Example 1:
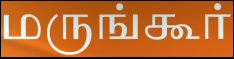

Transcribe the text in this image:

மருங்கூர்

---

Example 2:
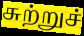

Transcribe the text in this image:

சுற்றுச்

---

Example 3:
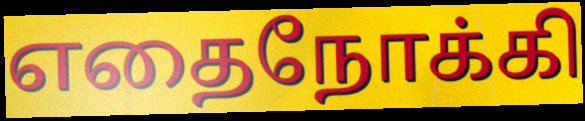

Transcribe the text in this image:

எதைநோக்கி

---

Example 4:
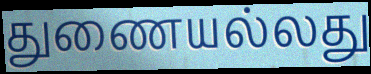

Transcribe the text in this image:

துணையல்லது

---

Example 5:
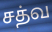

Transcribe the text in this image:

சத்வ